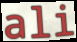
ali